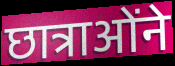
छात्राओंने